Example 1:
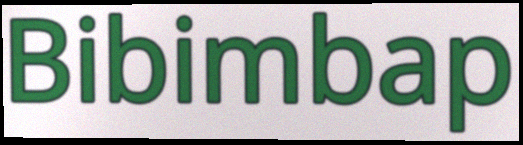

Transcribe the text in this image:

Bibimbap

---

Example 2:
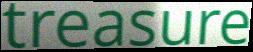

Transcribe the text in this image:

treasure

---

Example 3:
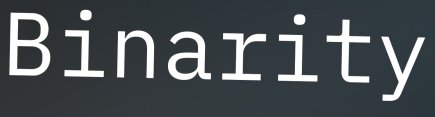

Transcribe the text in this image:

Binarity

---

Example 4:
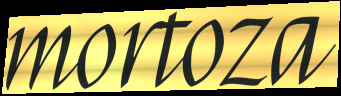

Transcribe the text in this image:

mortoza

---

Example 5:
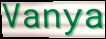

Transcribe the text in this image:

Vanya